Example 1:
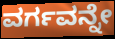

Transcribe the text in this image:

ವರ್ಗವನ್ನೇ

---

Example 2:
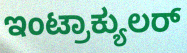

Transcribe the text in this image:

ಇಂಟ್ರಾಕ್ಯುಲರ್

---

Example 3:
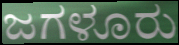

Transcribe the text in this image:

ಜಗಳೂರು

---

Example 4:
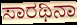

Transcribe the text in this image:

ಸಾರಥಿನಾ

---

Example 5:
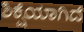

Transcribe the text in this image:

ಶಿಕ್ಷೆಯಾಗಿದೆ